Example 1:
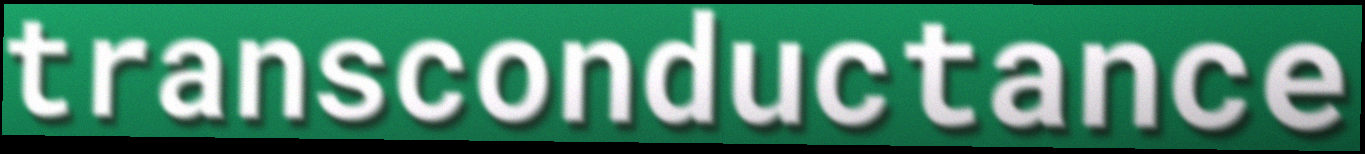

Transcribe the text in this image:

transconductance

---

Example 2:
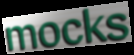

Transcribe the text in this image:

mocks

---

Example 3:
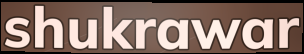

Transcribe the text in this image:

shukrawar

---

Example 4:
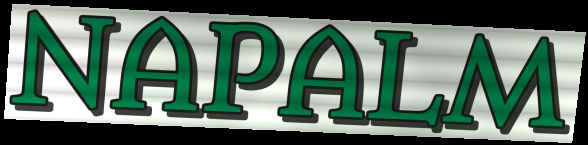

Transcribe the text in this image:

NAPALM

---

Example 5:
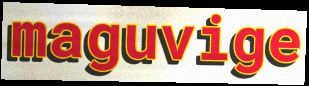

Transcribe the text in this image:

maguvige